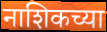
नाशिकच्या